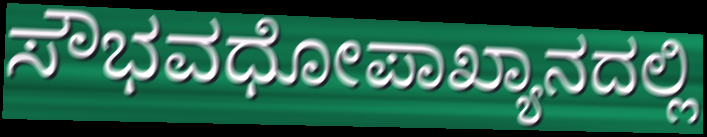
ಸೌಭವಧೋಪಾಖ್ಯಾನದಲ್ಲಿ